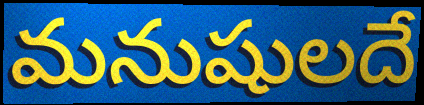
మనుషులదే